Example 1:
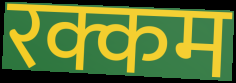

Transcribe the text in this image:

रक्कम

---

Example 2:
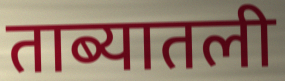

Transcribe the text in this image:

ताब्यातली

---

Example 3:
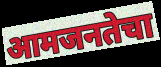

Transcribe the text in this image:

आमजनतेचा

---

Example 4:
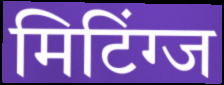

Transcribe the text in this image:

मिटिंग्ज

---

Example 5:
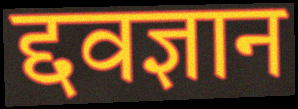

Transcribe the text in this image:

द्दवज्ञान